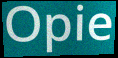
Opie